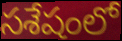
సశేషంలో